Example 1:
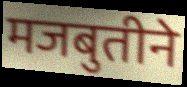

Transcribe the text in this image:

मजबुतीने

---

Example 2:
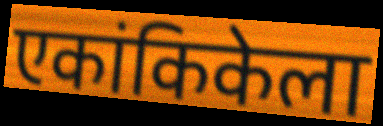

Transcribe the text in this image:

एकांकिकेला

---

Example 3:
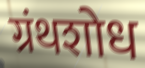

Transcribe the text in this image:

ग्रंथशोध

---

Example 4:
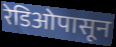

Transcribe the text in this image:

रेडिओपासून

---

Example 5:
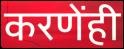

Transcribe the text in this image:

करणेंही